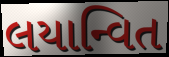
લયાન્વિત